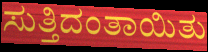
ಸುತ್ತಿದಂತಾಯಿತು